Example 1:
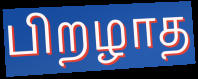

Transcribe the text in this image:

பிறழாத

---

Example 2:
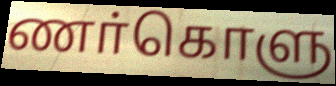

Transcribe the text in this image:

ணர்கொளு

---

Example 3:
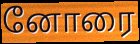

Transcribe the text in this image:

னோரை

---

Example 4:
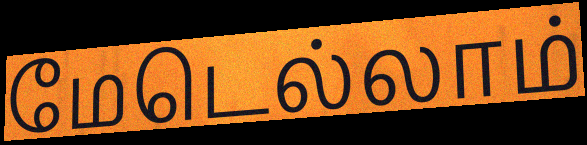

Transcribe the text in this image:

மேடெல்லாம்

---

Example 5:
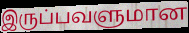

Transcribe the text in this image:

இருப்பவளுமான